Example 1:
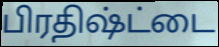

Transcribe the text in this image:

பிரதிஷ்ட்டை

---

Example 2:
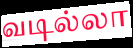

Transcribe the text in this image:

வடில்லா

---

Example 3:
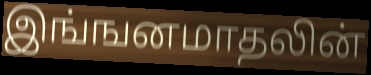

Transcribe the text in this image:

இங்ஙனமாதலின்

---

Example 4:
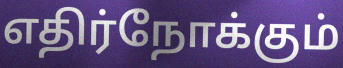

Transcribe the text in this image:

எதிர்நோக்கும்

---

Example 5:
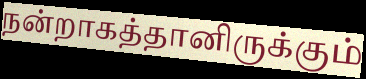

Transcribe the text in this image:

நன்றாகத்தானிருக்கும்